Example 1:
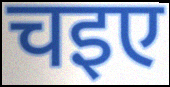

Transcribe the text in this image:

चइए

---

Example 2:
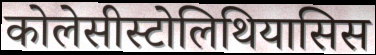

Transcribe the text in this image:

कोलेसीस्टोलिथियासिस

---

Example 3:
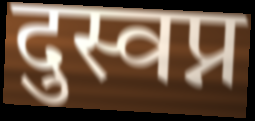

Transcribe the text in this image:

दुस्वप्न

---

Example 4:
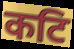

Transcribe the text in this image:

कटि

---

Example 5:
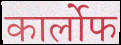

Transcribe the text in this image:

कार्लोफ